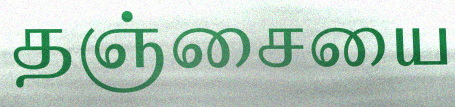
தஞ்சையை